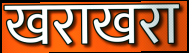
खराखरा